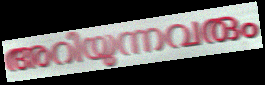
അറിയുന്നവരും